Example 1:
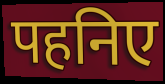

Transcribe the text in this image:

पहनिए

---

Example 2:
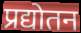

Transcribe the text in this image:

प्रद्योतन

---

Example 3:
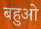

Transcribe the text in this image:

बहुओ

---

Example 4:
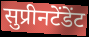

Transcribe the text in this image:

सुप्रीनटेंडेंट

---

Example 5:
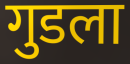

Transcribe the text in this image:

गुडला